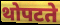
थोपटते